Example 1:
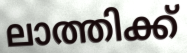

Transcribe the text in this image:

ലാത്തിക്ക്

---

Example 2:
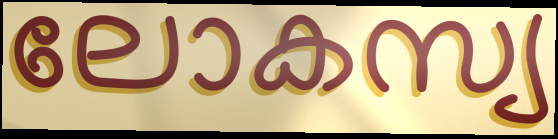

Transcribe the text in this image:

ലോകസ്യ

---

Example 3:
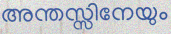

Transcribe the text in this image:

അന്തസ്സിനേയും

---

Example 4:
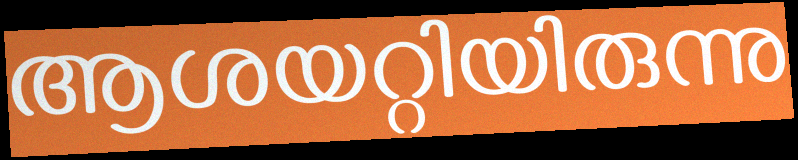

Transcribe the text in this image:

ആശയറ്റിയിരുന്നു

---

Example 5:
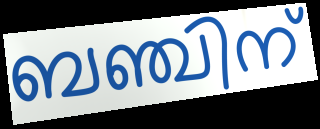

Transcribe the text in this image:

ബഞ്ചിന്